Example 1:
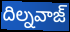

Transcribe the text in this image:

దిల్నవాజ్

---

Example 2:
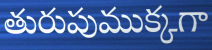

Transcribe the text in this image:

తురుపుముక్కగా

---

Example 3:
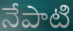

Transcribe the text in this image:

నేపాటి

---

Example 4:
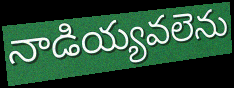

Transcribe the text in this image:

నాడియ్యవలెను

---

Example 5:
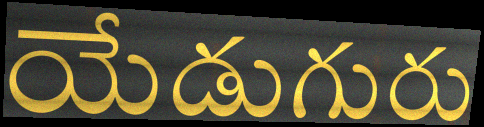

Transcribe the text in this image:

యేడుగురు